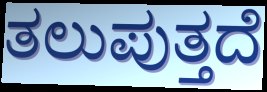
ತಲುಪುತ್ತದೆ